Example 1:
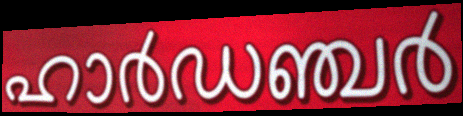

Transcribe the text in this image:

ഹാർഡഞ്ചർ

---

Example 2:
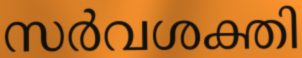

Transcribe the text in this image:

സർവശക്തി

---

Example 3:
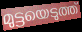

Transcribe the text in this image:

മുട്ടയെടുത്ത്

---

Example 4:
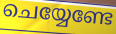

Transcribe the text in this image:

ചെയ്യേണ്ടേ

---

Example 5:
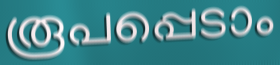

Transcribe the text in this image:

രൂപപ്പെടാം